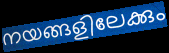
നയങ്ങളിലേക്കും